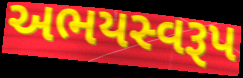
અભયસ્વરૂપ